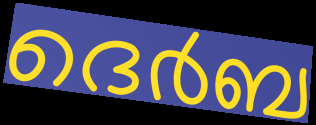
ദെർബ